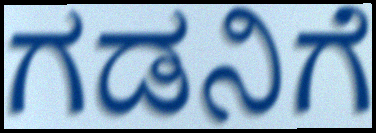
ಗಡನಿಗೆ